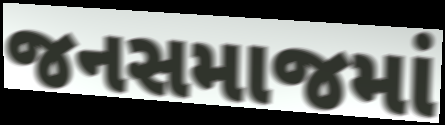
જનસમાજમાં